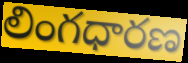
లింగధారణ